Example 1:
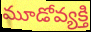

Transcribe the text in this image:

మూడోవ్యక్తి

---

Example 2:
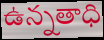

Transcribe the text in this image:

ఉన్నతాధి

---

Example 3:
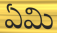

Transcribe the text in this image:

ఏమి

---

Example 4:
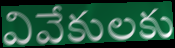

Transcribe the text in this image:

వివేకులకు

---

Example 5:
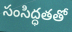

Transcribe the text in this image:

సంసిద్ధతతో